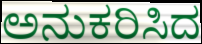
ಅನುಕರಿಸಿದ